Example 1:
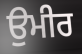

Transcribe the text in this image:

ਉਮੀਰ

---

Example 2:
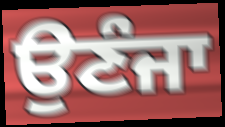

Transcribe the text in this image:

ਉਣੰਜਾ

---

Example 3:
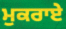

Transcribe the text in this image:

ਮੁਕਰਾਏ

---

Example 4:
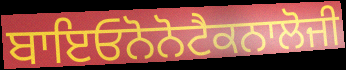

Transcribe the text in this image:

ਬਾਇਓਨੋਨੋਟੈਕਨਾਲੋਜੀ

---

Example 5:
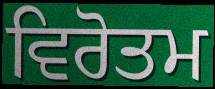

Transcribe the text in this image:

ਵਿਰੋਤਮ